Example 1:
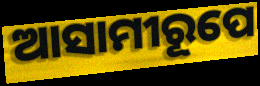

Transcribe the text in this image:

ଆସାମୀରୂପେ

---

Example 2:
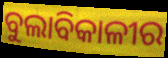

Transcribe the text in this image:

ବୁଲାବିକାଳୀର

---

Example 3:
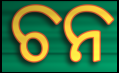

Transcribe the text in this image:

ଚନ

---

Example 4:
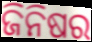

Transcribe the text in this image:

ଜିନିଷର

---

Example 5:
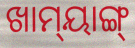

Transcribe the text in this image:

ଖାମ୍‌ୟାଙ୍ଗ୍